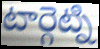
టార్గెట్ని